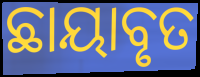
ଛାୟାବୃତ